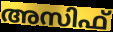
അസിഫ്